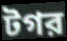
টগর